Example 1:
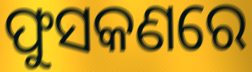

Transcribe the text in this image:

ଫୁସକଣରେ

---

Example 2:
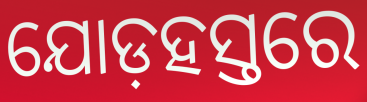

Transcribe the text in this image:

ଯୋଡ଼ହସ୍ତରେ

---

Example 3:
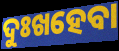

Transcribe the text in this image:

ଦୁଃଖହେବା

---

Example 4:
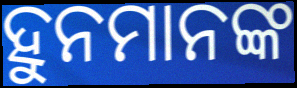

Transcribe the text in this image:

ହୁନମାନଙ୍କ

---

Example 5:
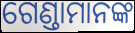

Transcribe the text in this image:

ଗେଣ୍ଡାମାନଙ୍କ